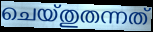
ചെയ്തുതന്നത്